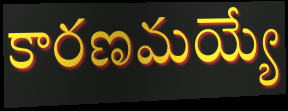
కారణమయ్యే